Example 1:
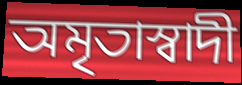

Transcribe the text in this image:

অমৃতাস্বাদী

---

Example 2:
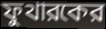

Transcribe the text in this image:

ফুথারকের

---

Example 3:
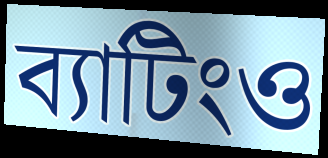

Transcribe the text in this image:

ব্যাটিংও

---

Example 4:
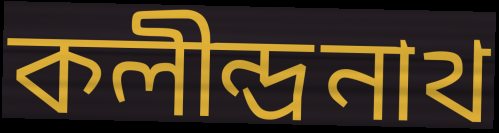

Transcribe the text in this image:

কলীন্দ্রনাথ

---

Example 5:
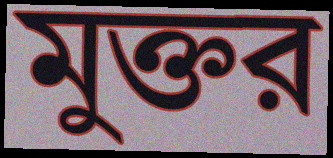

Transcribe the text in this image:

মুক্তর